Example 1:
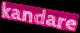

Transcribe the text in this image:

kandare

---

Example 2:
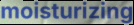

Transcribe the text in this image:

moisturizing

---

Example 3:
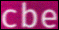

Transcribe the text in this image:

cbe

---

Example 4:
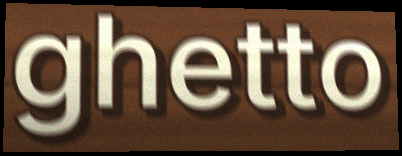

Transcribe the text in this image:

ghetto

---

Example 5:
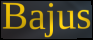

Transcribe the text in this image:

Bajus